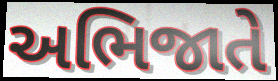
અભિજાતે